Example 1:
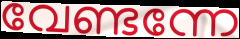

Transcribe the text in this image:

വേണ്ടന്നേ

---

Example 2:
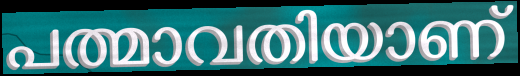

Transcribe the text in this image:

പത്മാവതിയാണ്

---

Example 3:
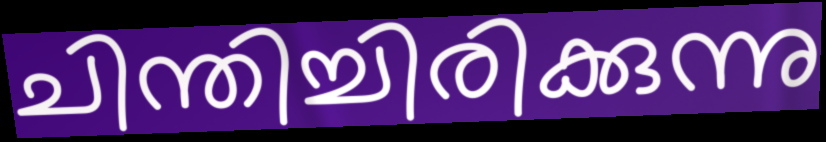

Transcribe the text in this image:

ചിന്തിച്ചിരിക്കുന്നു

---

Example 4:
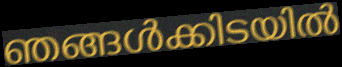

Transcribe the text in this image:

ഞങ്ങൾക്കിടയിൽ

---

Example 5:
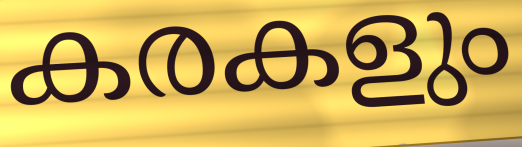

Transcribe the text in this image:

കരകളും